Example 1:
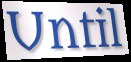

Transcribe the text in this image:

Until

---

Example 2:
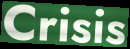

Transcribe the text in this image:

Crisis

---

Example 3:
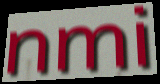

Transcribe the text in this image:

nmi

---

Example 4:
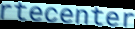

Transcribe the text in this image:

rtecenter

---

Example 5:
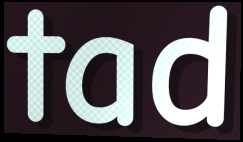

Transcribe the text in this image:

tad